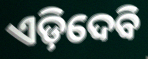
ଏଡ଼ିଦେବି